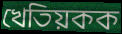
খেতিয়কক